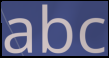
abc